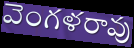
వెంగళరావు